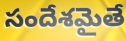
సందేశమైతే